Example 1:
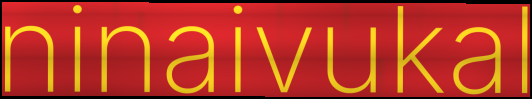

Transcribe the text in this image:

ninaivukal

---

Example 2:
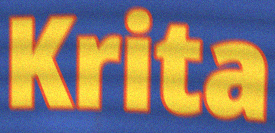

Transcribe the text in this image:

Krita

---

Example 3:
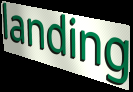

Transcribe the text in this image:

landing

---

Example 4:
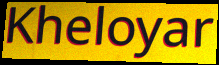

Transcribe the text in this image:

Kheloyar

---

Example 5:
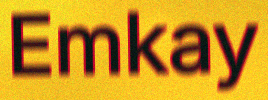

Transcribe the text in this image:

Emkay